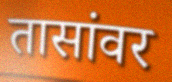
तासांवर